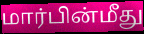
மார்பின்மீது